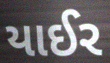
યાઈર